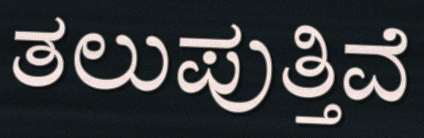
ತಲುಪುತ್ತಿವೆ